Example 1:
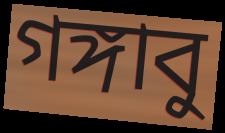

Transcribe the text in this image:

গঙ্গাবু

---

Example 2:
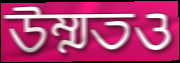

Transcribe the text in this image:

উম্মতও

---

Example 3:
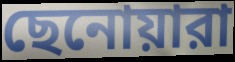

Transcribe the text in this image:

ছেনোয়ারা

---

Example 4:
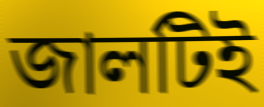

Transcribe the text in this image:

জালটিই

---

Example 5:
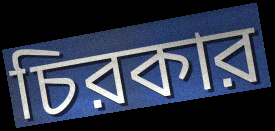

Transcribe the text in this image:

চিরকার